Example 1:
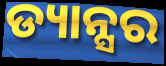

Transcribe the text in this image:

ଡ୍ୟାନ୍ସର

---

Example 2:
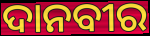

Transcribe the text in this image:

ଦାନବୀର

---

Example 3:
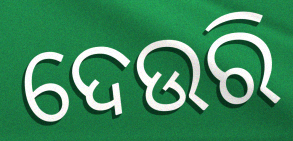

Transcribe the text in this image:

ଦେଉରି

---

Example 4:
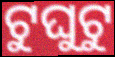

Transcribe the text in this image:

ଟୁଘୁଟୁ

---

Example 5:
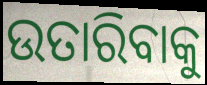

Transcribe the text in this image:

ଉତାରିବାକୁ